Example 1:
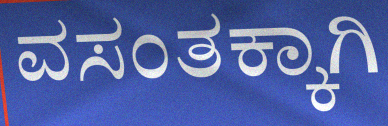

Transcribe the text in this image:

ವಸಂತಕ್ಕಾಗಿ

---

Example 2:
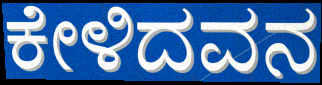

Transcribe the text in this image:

ಕೇಳಿದವನ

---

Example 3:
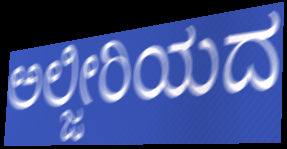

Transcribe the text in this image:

ಅಲ್ಜೀರಿಯದ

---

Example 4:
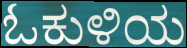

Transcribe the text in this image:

ಓಕುಳಿಯ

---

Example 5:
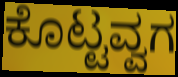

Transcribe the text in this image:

ಕೊಟ್ಟವ್ವಗ